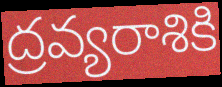
ద్రవ్యరాశికి